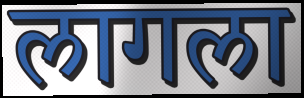
लागला